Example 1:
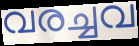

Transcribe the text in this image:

വരച്ചവ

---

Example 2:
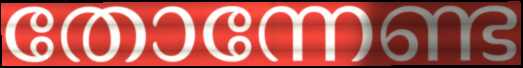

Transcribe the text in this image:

തോന്നേണ്ട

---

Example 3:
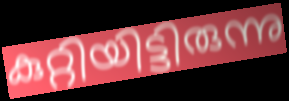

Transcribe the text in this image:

കുറ്റിയിട്ടിരുന്നു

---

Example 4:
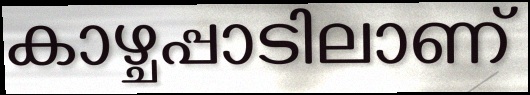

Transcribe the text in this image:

കാഴ്ചപ്പാടിലാണ്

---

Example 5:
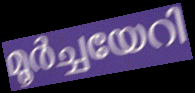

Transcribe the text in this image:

മൂർച്ചയേറി